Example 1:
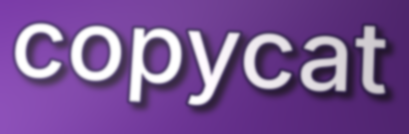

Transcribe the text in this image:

copycat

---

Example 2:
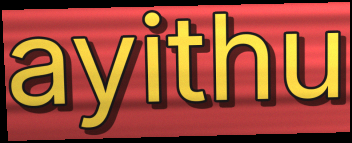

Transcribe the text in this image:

ayithu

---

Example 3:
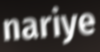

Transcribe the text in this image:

nariye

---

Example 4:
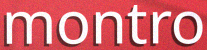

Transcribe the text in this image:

montro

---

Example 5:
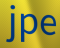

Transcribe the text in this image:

jpe